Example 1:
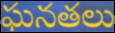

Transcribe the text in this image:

ఘనతలు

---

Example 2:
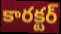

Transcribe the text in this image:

కారక్టర్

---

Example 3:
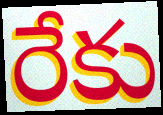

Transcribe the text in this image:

రేకు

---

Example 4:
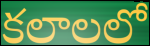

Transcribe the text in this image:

కలాలలో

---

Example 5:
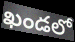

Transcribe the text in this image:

ఖండలో